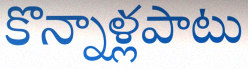
కొన్నాళ్లపాటు